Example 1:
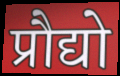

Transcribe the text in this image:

प्रौद्यो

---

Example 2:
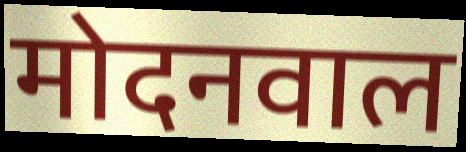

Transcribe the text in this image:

मोदनवाल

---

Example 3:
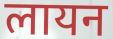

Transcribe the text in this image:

लायन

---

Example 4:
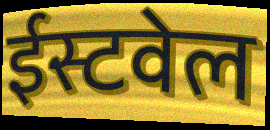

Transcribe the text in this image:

ईस्टवेल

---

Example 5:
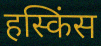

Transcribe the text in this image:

हस्किंस